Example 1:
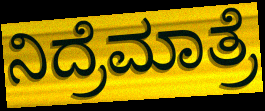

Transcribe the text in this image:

ನಿದ್ರೆಮಾತ್ರೆ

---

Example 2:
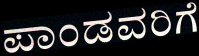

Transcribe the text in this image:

ಪಾಂಡವರಿಗೆ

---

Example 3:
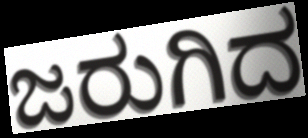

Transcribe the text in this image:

ಜರುಗಿದ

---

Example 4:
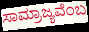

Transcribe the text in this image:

ಸಾಮ್ರಾಜ್ಯವೆಂಬ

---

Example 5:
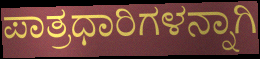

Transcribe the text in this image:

ಪಾತ್ರಧಾರಿಗಳನ್ನಾಗಿ